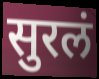
सुरलं